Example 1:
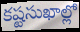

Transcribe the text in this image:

కష్టసుఖాల్లో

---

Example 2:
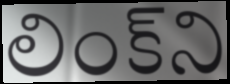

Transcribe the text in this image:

లింక్‌ని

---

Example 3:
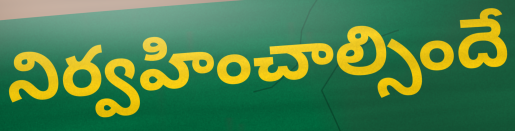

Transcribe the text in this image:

నిర్వహించాల్సిందే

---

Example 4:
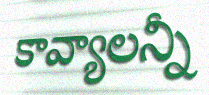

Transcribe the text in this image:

కావ్యాలన్నీ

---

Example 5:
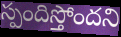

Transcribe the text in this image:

స్పందిస్తోందని